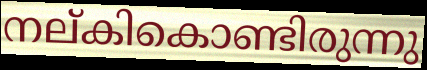
നല്കികൊണ്ടിരുന്നു